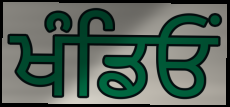
ਖੰਡਿਓਂ